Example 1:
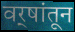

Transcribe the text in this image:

वर्षांतून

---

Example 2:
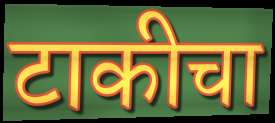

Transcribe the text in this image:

टाकीचा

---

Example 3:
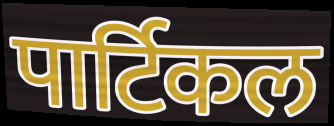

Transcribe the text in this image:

पार्टिकल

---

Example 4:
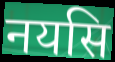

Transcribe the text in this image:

नयसि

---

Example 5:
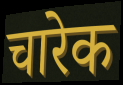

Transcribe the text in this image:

चारेक